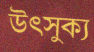
উৎসুক্য